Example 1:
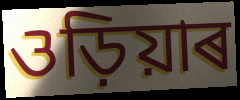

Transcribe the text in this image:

ওড়িয়াৰ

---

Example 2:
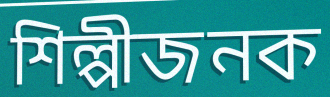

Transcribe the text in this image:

শিল্পীজনক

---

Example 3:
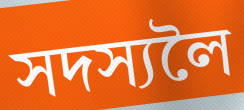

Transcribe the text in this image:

সদস্যলৈ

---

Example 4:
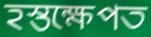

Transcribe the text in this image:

হস্তক্ষেপত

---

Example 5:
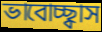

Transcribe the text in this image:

ভাবোচ্ছ্বাস